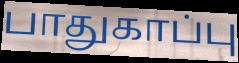
பாதுகாப்பு